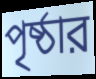
পৃষ্ঠার